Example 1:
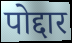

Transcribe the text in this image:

पोद्दार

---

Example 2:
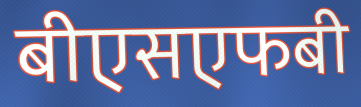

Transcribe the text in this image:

बीएसएफबी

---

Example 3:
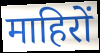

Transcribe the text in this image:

माहिरों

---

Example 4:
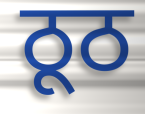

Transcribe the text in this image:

ठूठ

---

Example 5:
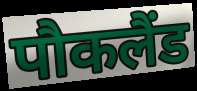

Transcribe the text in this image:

पौकलैंड